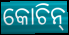
କୋଚିନ୍